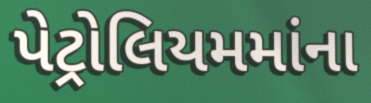
પેટ્રોલિયમમાંના